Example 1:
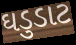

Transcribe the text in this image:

ઘડુડાટ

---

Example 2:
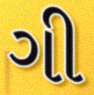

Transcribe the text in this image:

ગી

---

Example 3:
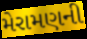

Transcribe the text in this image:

મેરામણની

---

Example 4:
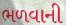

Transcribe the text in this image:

ભળવાની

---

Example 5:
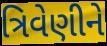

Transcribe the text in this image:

ત્રિવેણીને